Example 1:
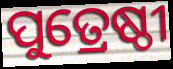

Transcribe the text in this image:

ପୁତ୍ରେଷ୍ଠୀ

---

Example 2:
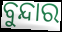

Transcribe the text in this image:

ବୁନ୍ଦାର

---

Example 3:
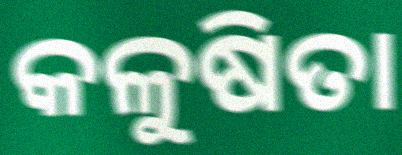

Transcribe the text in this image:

କଳୁଷିତା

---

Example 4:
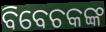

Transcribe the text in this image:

ବିବେଚକଙ୍କ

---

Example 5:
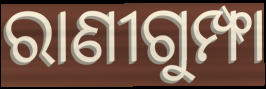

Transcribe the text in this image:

ରାଣୀଗୁମ୍ଫା